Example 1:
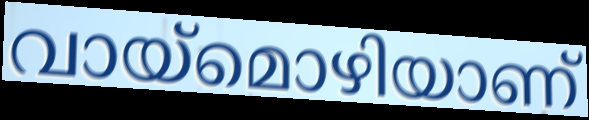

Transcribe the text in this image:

വായ്മൊഴിയാണ്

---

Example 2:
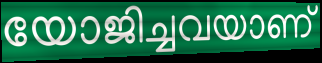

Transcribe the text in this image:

യോജിച്ചവയാണ്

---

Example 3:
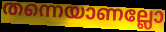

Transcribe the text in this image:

തന്നെയാണല്ലോ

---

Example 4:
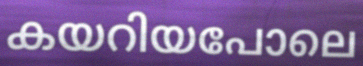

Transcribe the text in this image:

കയറിയപോലെ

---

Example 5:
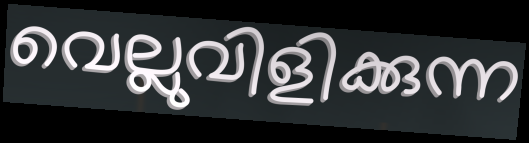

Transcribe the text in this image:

വെല്ലുവിളിക്കുന്ന